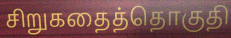
சிறுகதைத்தொகுதி